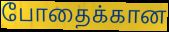
போதைக்கான